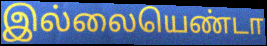
இல்லையெண்டா